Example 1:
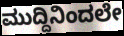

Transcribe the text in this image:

ಮುದ್ದಿನಿಂದಲೇ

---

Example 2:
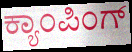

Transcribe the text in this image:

ಕ್ಯಾಂಪಿಂಗ್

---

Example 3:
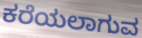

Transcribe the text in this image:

ಕರೆಯಲಾಗುವ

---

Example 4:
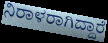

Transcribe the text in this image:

ನಿರಾಳರಾಗಿದ್ದಾರೆ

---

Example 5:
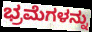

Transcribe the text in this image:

ಭ್ರಮೆಗಳನ್ನು